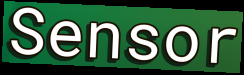
Sensor